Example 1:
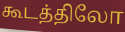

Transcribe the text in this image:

கூடத்திலோ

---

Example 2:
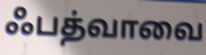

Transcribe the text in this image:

ஃபத்வாவை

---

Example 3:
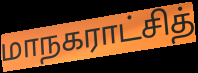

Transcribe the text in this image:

மாநகராட்சித்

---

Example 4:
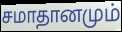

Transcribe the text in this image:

சமாதானமும்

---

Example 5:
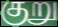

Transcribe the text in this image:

குறு